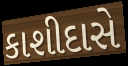
કાશીદાસે